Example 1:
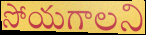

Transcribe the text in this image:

సోయగాలని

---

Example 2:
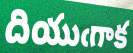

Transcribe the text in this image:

దియుఁగాక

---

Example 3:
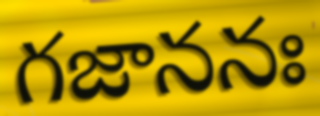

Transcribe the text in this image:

గజాననః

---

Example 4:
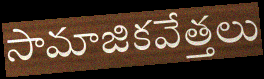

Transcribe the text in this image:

సామాజికవేత్తలు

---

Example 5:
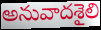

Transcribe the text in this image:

అనువాదశైలి